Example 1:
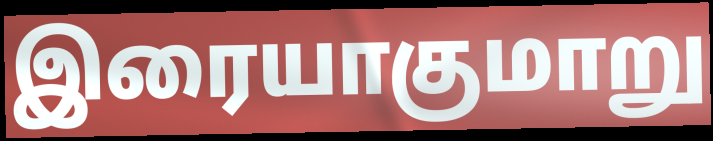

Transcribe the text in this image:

இரையாகுமாறு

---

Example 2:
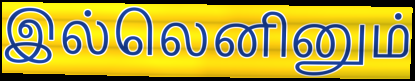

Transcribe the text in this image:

இல்லெனினும்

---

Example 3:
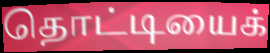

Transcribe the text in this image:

தொட்டியைக்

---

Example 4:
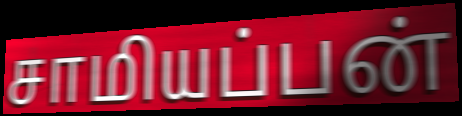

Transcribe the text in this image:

சாமியப்பன்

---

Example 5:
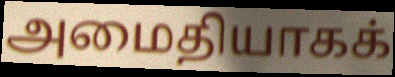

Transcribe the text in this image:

அமைதியாகக்